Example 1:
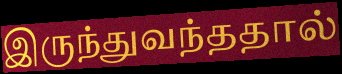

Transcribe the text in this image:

இருந்துவந்ததால்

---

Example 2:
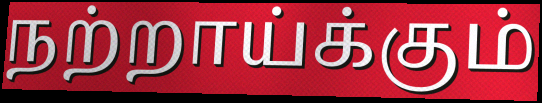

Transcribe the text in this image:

நற்றாய்க்கும்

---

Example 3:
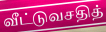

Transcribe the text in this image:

வீட்டுவசதித்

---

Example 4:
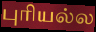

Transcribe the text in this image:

புரியல்ல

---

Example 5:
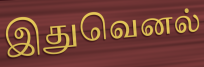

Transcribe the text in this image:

இதுவெனல்